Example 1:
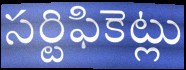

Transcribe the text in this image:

సర్టిఫికెట్లు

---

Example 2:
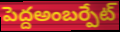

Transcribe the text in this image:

పెద్దఅంబర్పేట్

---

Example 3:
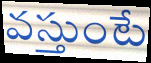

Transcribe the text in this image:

వస్తుంటే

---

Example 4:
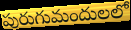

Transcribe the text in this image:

పురుగుమందులలో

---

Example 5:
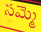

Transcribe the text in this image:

సమ్మె